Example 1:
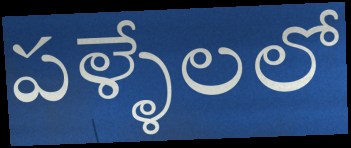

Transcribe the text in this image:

పళ్ళేలలో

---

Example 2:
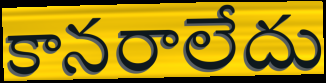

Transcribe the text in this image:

కానరాలేదు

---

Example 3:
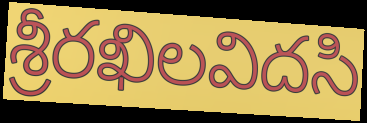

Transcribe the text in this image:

శ్రీరఖిలవిదసి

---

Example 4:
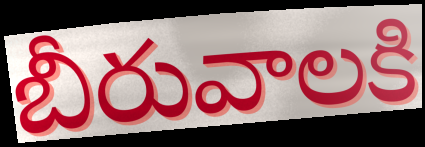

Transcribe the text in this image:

బీరువాలకి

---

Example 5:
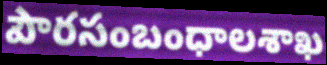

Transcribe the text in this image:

పౌరసంబంధాలశాఖ